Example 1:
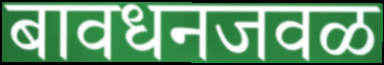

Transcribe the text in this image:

बावधनजवळ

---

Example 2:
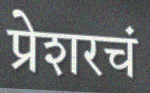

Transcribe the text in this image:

प्रेशरचं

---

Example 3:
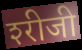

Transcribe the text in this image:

श्रीजी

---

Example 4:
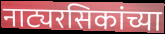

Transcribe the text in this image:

नाट्यरसिकांच्या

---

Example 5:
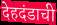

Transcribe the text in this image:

देहदंडाची